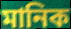
মানিক